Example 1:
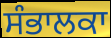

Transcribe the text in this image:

ਸੰਭਾਲਕਾ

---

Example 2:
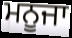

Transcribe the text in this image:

ਮਨੂਜਾ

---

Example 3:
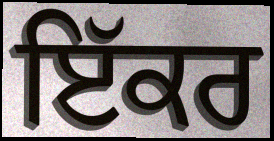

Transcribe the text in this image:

ਇੱਕਰ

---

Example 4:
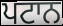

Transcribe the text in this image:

ਪਟਾਨ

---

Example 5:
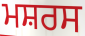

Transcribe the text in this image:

ਮਸ਼ਰਸ